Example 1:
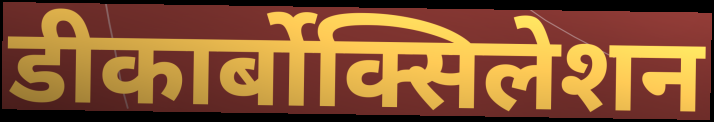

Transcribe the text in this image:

डीकार्बोक्सिलेशन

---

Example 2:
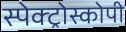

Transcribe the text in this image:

स्पेक्ट्रोस्कोपी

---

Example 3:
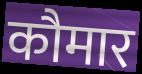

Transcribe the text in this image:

कौमार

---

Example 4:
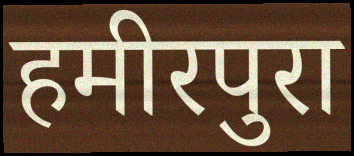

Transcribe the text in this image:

हमीरपुरा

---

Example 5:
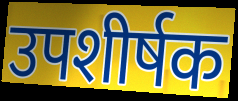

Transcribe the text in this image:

उपशीर्षक